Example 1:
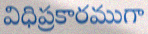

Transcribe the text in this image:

విధిప్రకారముగా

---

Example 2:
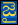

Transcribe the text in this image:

జై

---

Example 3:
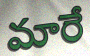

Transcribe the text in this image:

మారే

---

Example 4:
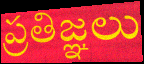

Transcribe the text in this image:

ప్రతిజ్ఞలు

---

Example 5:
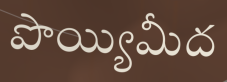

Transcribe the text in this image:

పొయ్యిమీద